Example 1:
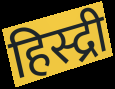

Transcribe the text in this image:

हिस्द्री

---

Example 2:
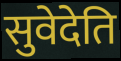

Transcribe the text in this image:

सुवेदेति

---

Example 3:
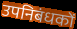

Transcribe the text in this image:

उपनिबंधकों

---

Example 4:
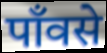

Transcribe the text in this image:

पाँवसे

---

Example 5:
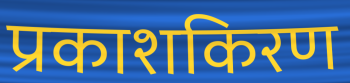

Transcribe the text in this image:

प्रकाशकिरण